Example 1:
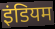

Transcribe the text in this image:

इंडियम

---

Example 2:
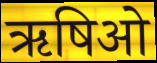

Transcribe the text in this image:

ऋषिओ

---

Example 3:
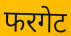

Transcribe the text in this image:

फरगेट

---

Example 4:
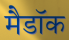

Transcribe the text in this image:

मैडॉक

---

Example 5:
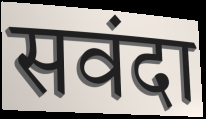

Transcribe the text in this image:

सवंदा